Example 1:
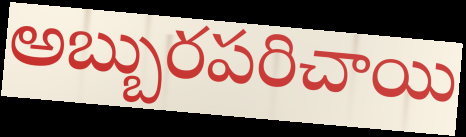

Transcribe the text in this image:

అబ్బురపరిచాయి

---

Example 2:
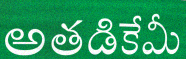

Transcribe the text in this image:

అతడికేమీ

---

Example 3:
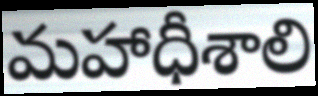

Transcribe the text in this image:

మహాధీశాలి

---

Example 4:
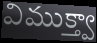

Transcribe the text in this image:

విముక్త్వా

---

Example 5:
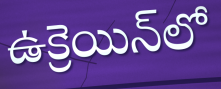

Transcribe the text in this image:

ఉక్రెయిన్‌లో